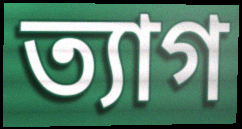
ত্যাগ